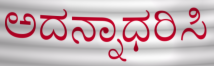
ಅದನ್ನಾಧರಿಸಿ